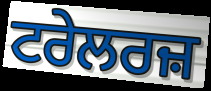
ਟਰੇਲਰਜ਼